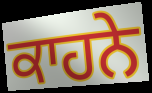
ਕਾਹਨੇ